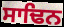
ਸਾਢਿਨ